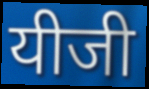
यीजी